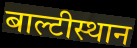
बाल्टीस्थान